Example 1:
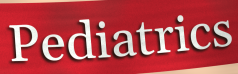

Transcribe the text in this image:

Pediatrics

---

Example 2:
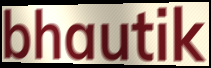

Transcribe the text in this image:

bhautik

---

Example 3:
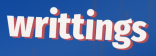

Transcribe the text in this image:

writtings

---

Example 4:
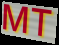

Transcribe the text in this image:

MT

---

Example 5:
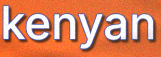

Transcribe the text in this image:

kenyan